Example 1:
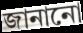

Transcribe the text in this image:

জানানো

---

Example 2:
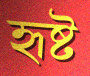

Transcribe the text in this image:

হৃষ্ট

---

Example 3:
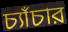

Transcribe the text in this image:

চ্যাঁচার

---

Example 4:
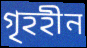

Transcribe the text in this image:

গৃহহীন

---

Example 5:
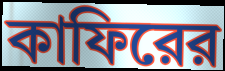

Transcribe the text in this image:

কাফিরের